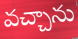
వచ్చాను